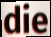
die